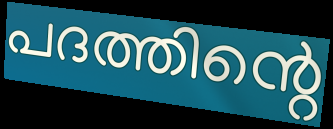
പദത്തിന്റെ